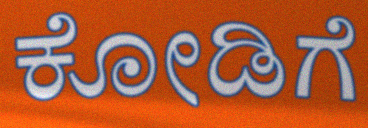
ಕೋಡಿಗೆ